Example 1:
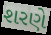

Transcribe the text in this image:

શરણે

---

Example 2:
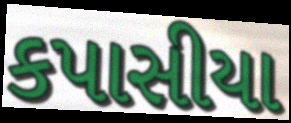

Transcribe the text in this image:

કપાસીયા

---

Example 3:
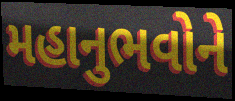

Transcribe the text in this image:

મહાનુભવોને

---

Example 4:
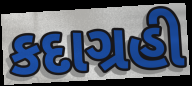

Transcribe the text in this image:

કદાગ્રહી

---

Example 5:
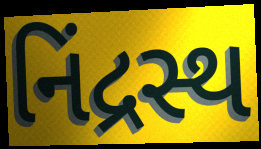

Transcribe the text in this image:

નિંદ્રસ્થ